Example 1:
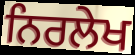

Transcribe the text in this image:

ਨਿਰਲੇਖ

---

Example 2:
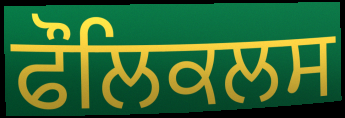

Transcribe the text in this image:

ਫੌਲਿਕਲਸ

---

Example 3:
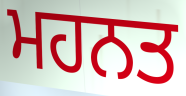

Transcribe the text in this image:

ਮਹਨਤ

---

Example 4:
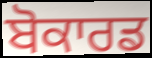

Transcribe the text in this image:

ਬੋਕਾਰਡ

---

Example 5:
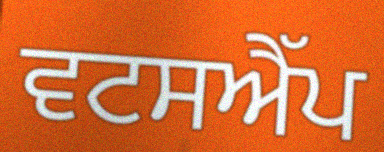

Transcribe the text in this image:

ਵਟਸਐੱਪ